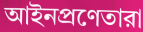
আইনপ্রণেতারা